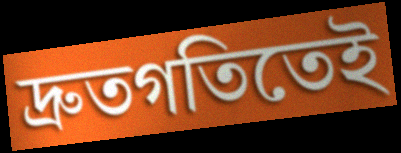
দ্রুতগতিতেই